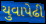
યુવાપેઢી